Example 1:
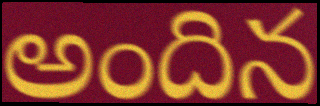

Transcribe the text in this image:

అందిన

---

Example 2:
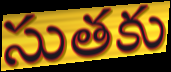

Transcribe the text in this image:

సుతకు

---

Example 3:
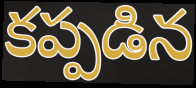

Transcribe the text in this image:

కప్పడిన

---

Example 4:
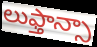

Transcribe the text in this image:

లుఫ్తాన్సా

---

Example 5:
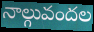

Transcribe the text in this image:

నాల్గువందల